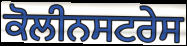
ਕੋਲੀਨਸਟਰੇਸ